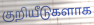
குறியீடுகளாக